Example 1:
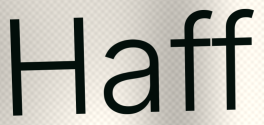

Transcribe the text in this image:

Haff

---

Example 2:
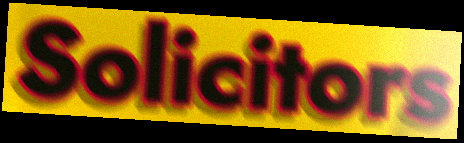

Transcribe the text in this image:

Solicitors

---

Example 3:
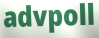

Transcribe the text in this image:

advpoll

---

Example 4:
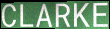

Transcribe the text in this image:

CLARKE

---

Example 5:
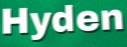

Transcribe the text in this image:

Hyden